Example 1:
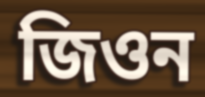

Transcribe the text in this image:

জিওন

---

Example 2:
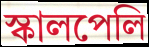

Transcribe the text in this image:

স্কালপেলি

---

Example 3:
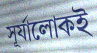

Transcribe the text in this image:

সূর্যালোকই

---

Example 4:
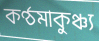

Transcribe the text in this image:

কণ্ঠমাকুঞ্চ্য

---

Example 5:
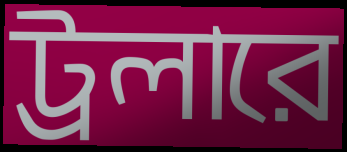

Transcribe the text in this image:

ট্রলারে